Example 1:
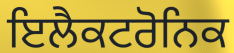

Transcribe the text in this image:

ਇਲੈਕਟਰੋਨਿਕ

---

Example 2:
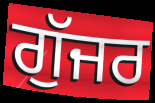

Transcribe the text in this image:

ਗੁੱਜਰ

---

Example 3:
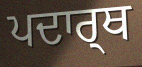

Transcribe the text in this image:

ਪਦਾਰ੍ਥ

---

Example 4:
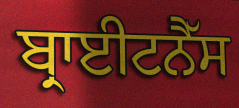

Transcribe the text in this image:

ਬ੍ਰਾਈਟਨੈੱਸ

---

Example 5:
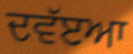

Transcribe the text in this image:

ਦਵੱੲਆ